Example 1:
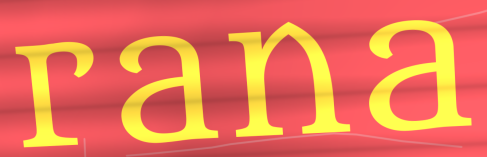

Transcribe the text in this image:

rana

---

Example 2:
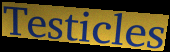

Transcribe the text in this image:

Testicles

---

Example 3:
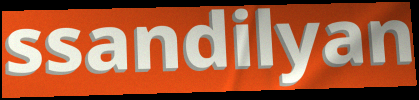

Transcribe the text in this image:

ssandilyan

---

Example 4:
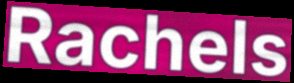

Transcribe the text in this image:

Rachels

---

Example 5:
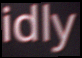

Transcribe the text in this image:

idly